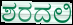
ಶರದಲಿ